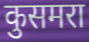
कुसमरा